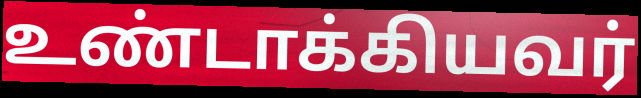
உண்டாக்கியவர்